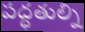
పద్ధతుల్ని